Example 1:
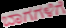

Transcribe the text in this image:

ಬಾಗಗಳಿಗೆ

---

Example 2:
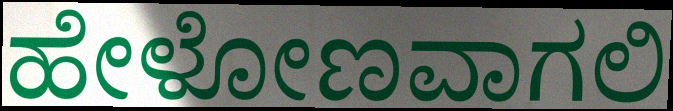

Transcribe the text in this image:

ಹೇಳೋಣವಾಗಲಿ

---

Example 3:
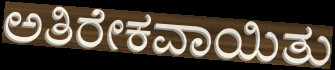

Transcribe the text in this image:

ಅತಿರೇಕವಾಯಿತು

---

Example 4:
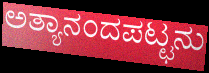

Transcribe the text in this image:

ಅತ್ಯಾನಂದಪಟ್ಟನು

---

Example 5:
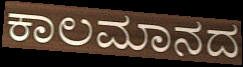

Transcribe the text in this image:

ಕಾಲಮಾನದ